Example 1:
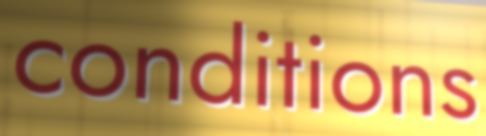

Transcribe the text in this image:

conditions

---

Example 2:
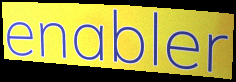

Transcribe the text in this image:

enabler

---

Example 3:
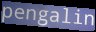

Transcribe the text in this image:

pengalin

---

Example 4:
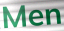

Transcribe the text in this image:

Men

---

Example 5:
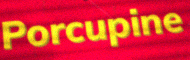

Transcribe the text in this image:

Porcupine